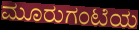
ಮೂರುಗಂಟೆಯ